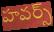
హవర్స్